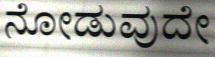
ನೋಡುವುದೇ